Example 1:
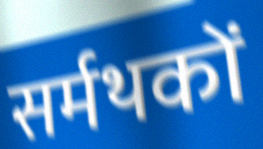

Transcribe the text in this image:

सर्मथकों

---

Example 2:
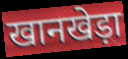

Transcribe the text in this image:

खानखेड़ा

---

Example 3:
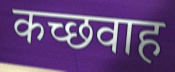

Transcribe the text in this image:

कच्छवाह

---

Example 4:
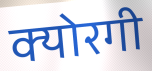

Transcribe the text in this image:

क्योरगी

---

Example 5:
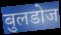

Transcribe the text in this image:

बुलडोज